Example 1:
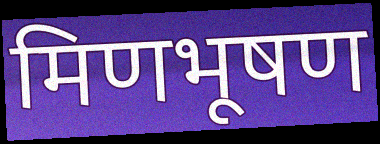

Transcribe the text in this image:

मिणभूषण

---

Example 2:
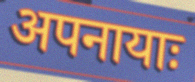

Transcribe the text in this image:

अपनायाः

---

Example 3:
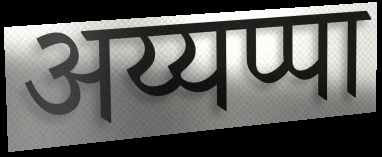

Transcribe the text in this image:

अय्यप्पा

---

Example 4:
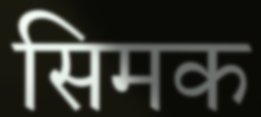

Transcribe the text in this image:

सिमक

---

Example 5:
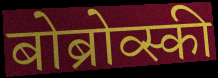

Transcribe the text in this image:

बोब्रोव्स्की